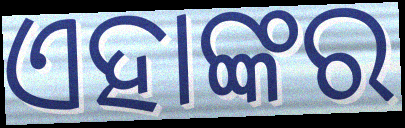
ଏହାଙ୍କର